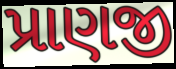
પ્રાણજી